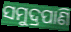
ସମୁଦ୍ରପାଣି